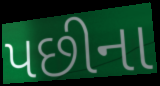
પછીના